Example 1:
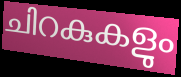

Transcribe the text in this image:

ചിറകുകളും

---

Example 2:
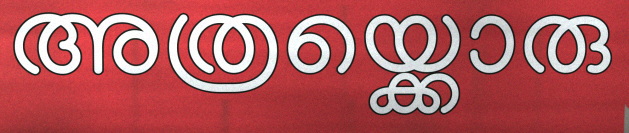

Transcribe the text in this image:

അത്രയ്ക്കൊരു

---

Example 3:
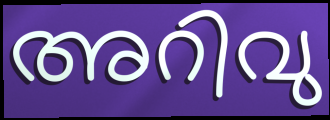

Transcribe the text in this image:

അറിവു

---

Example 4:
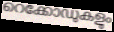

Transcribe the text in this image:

റെക്കോഡുകളും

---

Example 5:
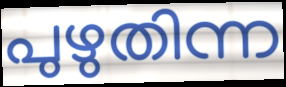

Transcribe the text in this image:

പുഴുതിന്ന